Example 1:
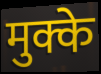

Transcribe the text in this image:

मुक्‍के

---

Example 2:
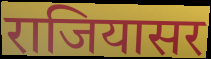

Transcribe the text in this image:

राजियासर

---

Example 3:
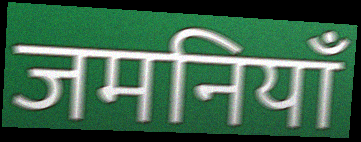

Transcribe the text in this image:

जमनियाँ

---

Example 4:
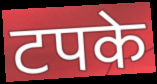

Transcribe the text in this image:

टपके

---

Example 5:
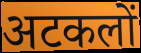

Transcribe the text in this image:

अटकलों